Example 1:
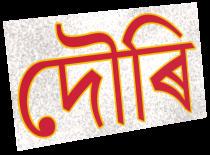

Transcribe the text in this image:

দৌৰি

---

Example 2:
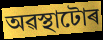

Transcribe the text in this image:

অৱস্থাটোৰ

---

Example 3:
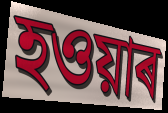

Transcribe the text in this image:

হওয়াৰ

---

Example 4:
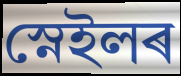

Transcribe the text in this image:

স্নেইলৰ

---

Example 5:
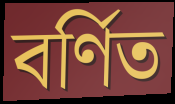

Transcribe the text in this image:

বৰ্ণিত